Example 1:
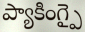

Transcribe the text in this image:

ప్యాకింగ్పై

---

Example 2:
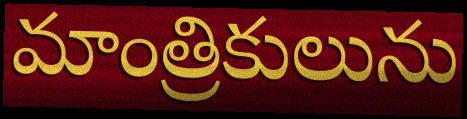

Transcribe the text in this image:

మాంత్రికులును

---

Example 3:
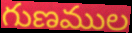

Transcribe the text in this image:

గుణముల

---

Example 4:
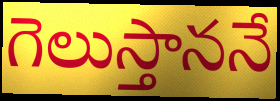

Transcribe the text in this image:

గెలుస్తాననే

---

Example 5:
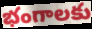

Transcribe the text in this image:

భంగాలకు